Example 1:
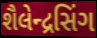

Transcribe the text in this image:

શૈલેન્દ્રસિંગ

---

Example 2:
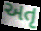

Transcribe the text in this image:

અતૃ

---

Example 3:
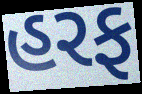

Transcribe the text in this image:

હરફ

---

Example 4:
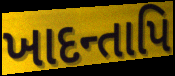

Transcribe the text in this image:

ખાદન્તાપિ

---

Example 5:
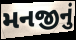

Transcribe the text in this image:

મનજીનું